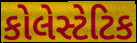
કોલેસ્ટેટિક